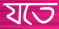
যতে